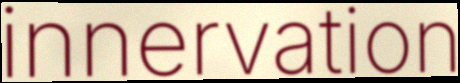
innervation